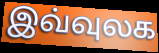
இவ்வுலக